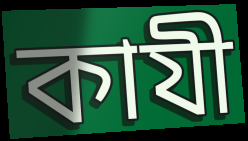
কাযী